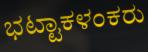
ಭಟ್ಟಾಕಳಂಕರು